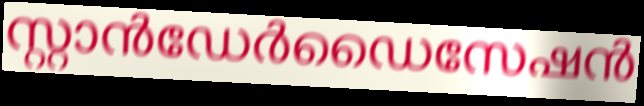
സ്റ്റാൻഡേർഡൈസേഷൻ